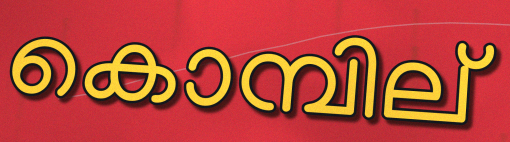
കൊമ്പില്